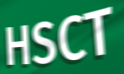
HSCT